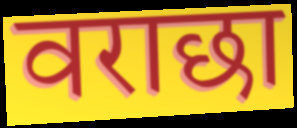
वराछा